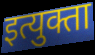
इत्युक्ता